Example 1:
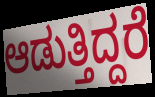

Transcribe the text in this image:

ಆಡುತ್ತಿದ್ದರೆ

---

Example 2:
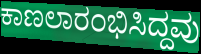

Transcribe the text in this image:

ಕಾಣಲಾರಂಭಿಸಿದ್ದವು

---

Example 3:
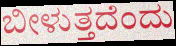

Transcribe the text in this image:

ಬೀಳುತ್ತದೆಂದು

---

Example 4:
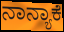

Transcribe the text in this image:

ನಾನ್ಯಾಕೆ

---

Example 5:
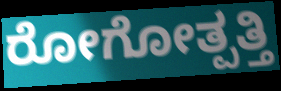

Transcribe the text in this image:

ರೋಗೋತ್ಪತ್ತಿ